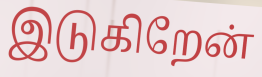
இடுகிறேன்